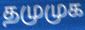
தமுமுக